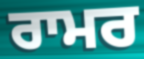
ਰਾਮਰ